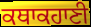
ਕਥਾਕਹਾਣੀ